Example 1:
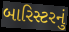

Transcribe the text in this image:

બારિસ્ટરનું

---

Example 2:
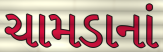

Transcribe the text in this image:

ચામડાનાં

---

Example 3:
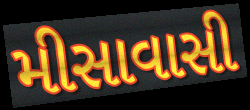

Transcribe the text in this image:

મીસાવાસી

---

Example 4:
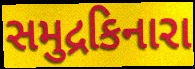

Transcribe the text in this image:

સમુદ્રકિનારા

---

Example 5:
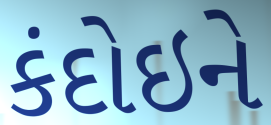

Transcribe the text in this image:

કંદોઇને